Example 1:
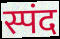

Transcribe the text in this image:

स्पंद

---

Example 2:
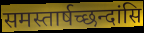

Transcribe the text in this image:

समस्तार्षच्छन्दांसि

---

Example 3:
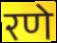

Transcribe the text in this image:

रणे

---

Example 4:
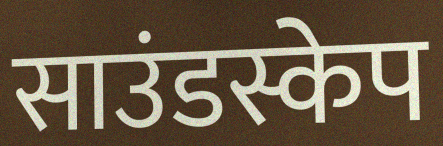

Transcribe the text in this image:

साउंडस्केप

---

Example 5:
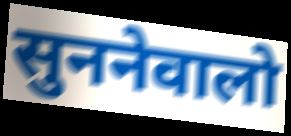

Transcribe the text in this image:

सुननेवालो